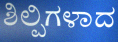
ಶಿಲ್ಪಿಗಳಾದ